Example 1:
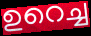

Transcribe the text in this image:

ഉറെച്ച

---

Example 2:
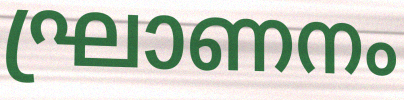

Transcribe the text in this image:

ഘ്രാണനം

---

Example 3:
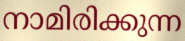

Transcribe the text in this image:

നാമിരിക്കുന്ന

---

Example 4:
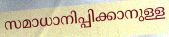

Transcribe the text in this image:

സമാധാനിപ്പിക്കാനുള്ള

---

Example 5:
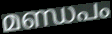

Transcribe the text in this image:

മണ്ഡപം